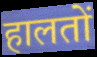
हालतों